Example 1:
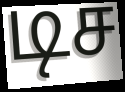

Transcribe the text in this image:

டிச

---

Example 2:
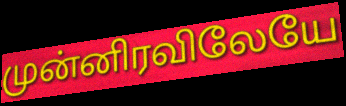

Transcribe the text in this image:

முன்னிரவிலேயே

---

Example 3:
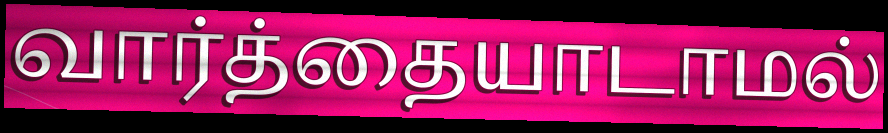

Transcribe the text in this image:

வார்த்தையாடாமல்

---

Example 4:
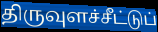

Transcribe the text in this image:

திருவுளச்சீட்டுப்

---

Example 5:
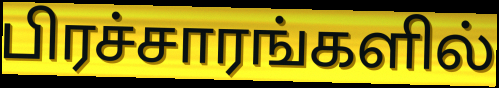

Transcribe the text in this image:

பிரச்சாரங்களில்